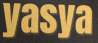
yasya